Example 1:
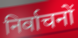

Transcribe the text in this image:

निर्वाचनों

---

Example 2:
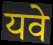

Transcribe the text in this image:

यवे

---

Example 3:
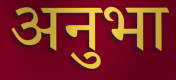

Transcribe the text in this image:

अनुभा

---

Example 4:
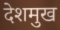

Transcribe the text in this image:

देशमुख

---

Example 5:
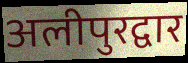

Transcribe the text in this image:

अलीपुरद्वार